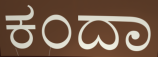
ಕಂದಾ